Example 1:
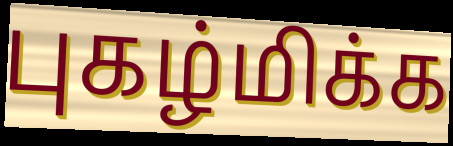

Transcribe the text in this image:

புகழ்மிக்க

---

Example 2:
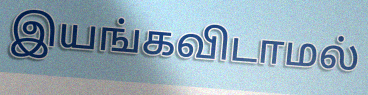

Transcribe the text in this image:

இயங்கவிடாமல்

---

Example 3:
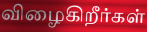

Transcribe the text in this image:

விழைகிறீர்கள்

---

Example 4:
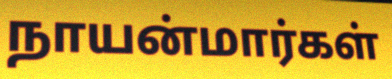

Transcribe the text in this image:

நாயன்மார்கள்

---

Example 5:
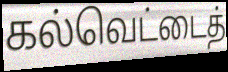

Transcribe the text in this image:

கல்வெட்டைத்